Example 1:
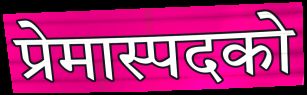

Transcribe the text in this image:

प्रेमास्पदको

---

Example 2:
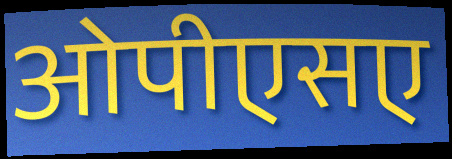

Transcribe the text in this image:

ओपीएसए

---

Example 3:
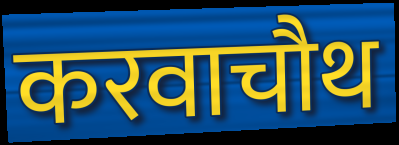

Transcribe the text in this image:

करवाचौथ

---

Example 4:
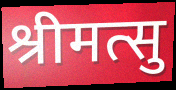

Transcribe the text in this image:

श्रीमत्सु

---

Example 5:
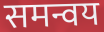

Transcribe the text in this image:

समन्वय